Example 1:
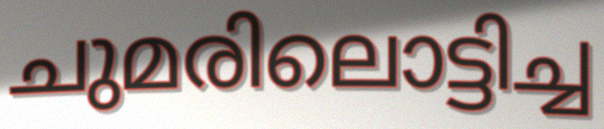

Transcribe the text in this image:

ചുമരിലൊട്ടിച്ച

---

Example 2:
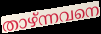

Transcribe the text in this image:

താഴ്ന്നവനെ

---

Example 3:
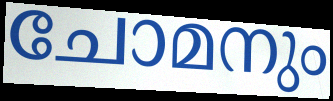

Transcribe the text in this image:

ചോമനും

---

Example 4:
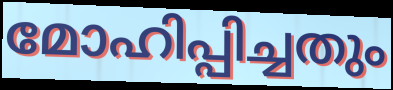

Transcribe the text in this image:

മോഹിപ്പിച്ചതും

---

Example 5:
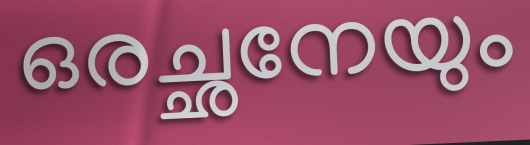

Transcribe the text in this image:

ഒരച്ഛനേയും